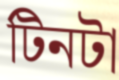
টিনটা